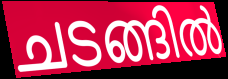
ചടങ്ങിൽ